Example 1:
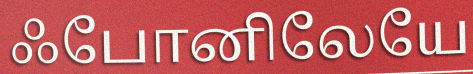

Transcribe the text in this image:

ஃபோனிலேயே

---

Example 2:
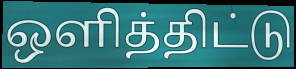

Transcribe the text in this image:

ஒளித்திட்டு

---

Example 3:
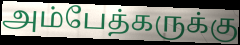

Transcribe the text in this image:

அம்பேத்கருக்கு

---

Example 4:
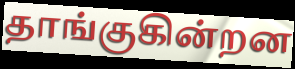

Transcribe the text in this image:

தாங்குகின்றன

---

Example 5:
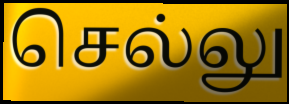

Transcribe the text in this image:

செல்லு